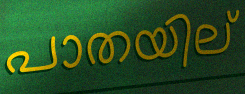
പാതയില്